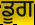
ਡੂਗ